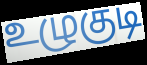
உழுகுடி